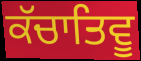
ਕੱਚਾਤਿਵੂ